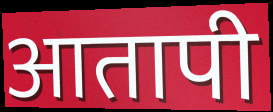
आतापी